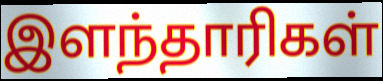
இளந்தாரிகள்